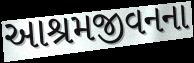
આશ્રમજીવનના